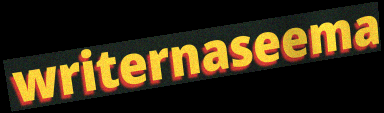
writernaseema